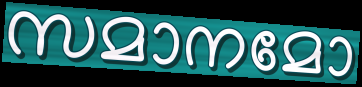
സമാനമോ